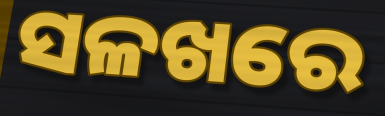
ସଳଖରେ